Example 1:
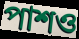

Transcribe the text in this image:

পাশও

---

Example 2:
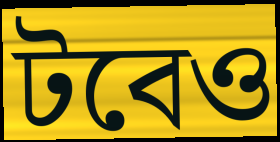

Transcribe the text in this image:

টবেও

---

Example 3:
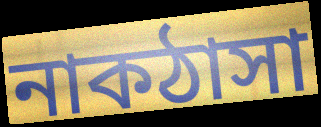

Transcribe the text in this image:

নাকঠাসা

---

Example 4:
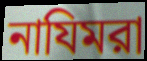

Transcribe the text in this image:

নাযিমরা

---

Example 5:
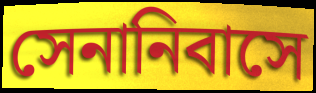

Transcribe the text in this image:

সেনানিবাসে